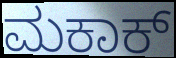
ಮಕಾಕ್